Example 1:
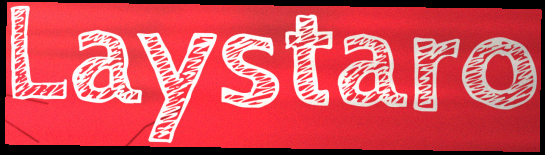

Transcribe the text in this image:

Laystaro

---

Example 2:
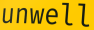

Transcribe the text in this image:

unwell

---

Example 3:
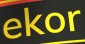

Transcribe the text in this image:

ekor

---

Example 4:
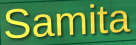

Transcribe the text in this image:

Samita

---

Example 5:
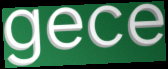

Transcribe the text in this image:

gece